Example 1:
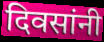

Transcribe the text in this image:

दिवसांनी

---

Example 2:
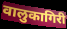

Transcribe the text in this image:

वालुकागिरी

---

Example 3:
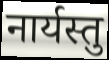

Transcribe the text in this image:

नार्यस्तु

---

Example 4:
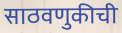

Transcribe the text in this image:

साठवणुकीची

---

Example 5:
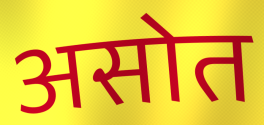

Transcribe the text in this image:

असोत